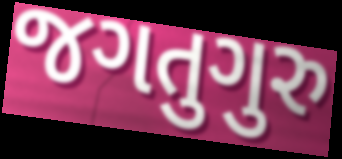
જગતુગુરુ